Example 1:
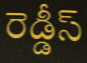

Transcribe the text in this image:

రెడ్డీస్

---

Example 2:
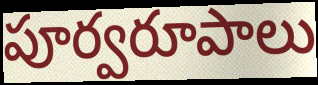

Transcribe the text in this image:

పూర్వరూపాలు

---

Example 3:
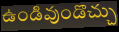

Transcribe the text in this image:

ఉండివుండొచ్చు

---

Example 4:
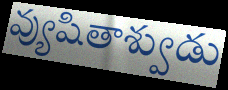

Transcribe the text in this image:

వ్యుషితాశ్వుడు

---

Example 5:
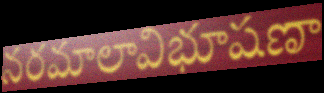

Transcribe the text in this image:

నరమాలావిభూషణా